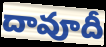
దావూదీ